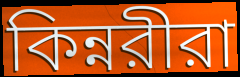
কিন্নরীরা